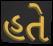
હતે